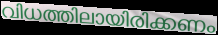
വിധത്തിലായിരിക്കണം